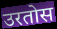
उरतोस